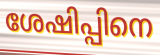
ശേഷിപ്പിനെ